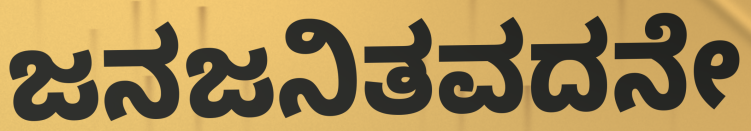
ಜನಜನಿತವದನೇ